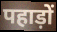
पहाड़ों